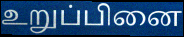
உறுப்பினை